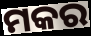
ମକର